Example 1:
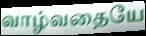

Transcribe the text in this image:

வாழ்வதையே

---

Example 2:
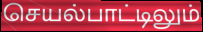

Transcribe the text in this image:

செயல்பாட்டிலும்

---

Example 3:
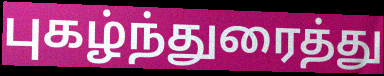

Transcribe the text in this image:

புகழ்ந்துரைத்து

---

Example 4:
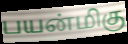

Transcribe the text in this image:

பயன்மிகு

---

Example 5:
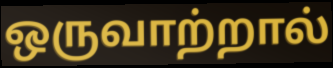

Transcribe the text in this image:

ஒருவாற்றால்